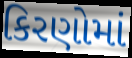
કિરણોમાં